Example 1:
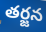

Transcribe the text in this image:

తర్జన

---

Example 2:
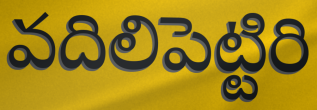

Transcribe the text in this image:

వదిలిపెట్టిరి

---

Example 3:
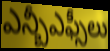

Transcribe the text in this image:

ఎన్బీఎఫ్సీలు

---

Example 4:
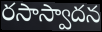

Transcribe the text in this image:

రసాస్వాదన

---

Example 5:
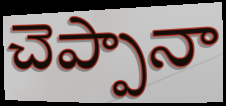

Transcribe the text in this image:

చెప్పానా